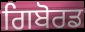
ਗਿਬੋਰਡ